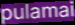
pulamai